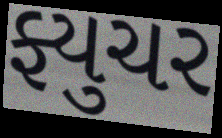
ફ્યુચર